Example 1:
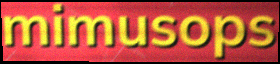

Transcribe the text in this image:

mimusops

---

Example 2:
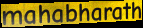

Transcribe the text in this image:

mahabharath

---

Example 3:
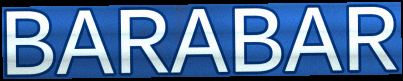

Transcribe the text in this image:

BARABAR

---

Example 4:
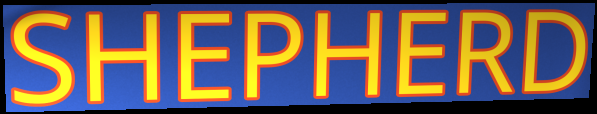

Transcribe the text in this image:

SHEPHERD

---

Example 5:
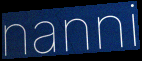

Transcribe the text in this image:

nanni